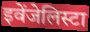
इवेंजेलिस्टा